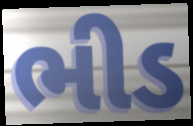
ભીડ